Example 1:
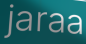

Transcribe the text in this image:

jaraa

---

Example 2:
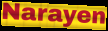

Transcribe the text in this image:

Narayen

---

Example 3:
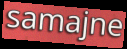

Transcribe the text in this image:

samajne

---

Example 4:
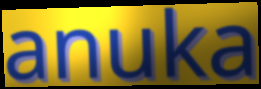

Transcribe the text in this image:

anuka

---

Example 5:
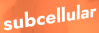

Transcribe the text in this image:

subcellular